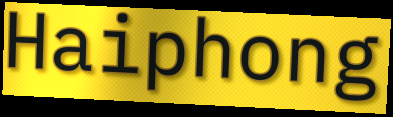
Haiphong